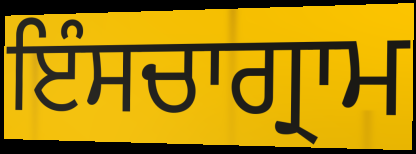
ਇੰਸਚਾਗ੍ਰਾਮ